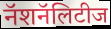
नॅशनॅलिटीज